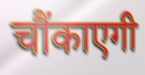
चौंकाएगी